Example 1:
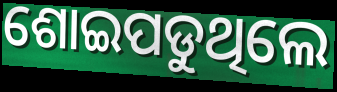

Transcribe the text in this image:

ଶୋଇପଡୁଥିଲେ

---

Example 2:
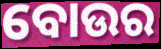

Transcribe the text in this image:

ବୋଉର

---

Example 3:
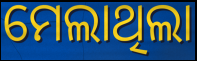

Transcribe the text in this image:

ମେଲାଥିଲା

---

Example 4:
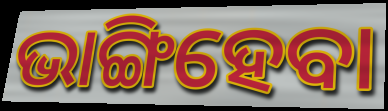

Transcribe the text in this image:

ଭାଙ୍ଗିହେବା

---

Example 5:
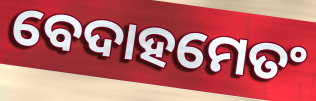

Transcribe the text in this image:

ବେଦାହମେତଂ